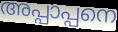
അപ്പാപ്പനെ